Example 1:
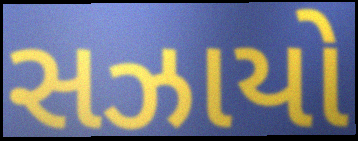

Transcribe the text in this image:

સઝાયો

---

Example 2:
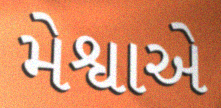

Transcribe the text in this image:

મેશ્વાએ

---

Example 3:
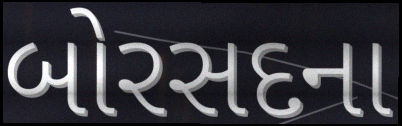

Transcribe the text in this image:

બોરસદના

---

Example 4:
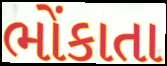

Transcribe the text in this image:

ભોંકાતા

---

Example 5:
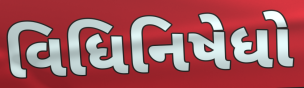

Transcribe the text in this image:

વિધિનિષેધો